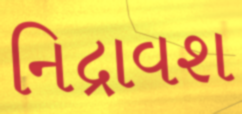
નિદ્રાવશ